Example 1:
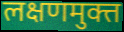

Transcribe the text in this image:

लक्षणमुक्त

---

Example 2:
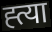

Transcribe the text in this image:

ह्त्या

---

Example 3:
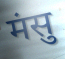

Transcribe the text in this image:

मंसु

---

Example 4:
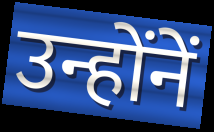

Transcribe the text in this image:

उन्होंनें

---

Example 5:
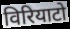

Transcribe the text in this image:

विरियाटो